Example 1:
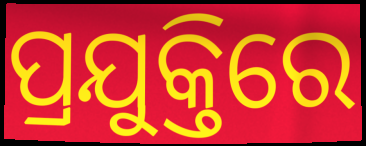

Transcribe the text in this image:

ପ୍ରଯୁକ୍ତିରେ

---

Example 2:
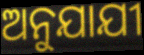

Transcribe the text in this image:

ଅନୁଯାଯୀ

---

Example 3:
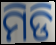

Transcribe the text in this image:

ମିଡି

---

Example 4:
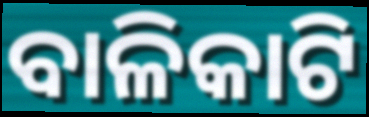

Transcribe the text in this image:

ବାଳିକାଟି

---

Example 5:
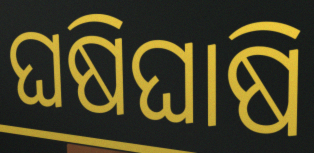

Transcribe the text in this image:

ଘଷିଘାଷି